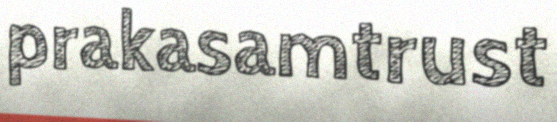
prakasamtrust